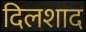
दिलशाद